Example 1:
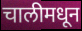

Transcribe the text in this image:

चालीमधून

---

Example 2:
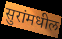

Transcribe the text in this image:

सुरांमधील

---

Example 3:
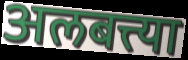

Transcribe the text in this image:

अलबत्त्या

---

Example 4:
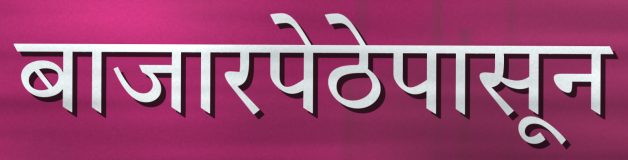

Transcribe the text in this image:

बाजारपेठेपासून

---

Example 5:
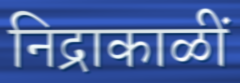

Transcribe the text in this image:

निद्राकाळीं